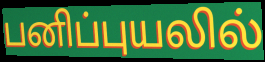
பனிப்புயலில்